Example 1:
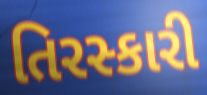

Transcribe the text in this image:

તિરસ્કારી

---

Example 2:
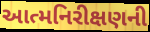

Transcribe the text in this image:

આત્મનિરીક્ષણની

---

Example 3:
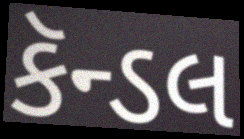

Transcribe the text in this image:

કૅન્ડલ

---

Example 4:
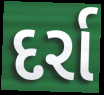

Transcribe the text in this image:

દર્રા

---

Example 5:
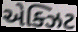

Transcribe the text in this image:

એક્ઝિટ